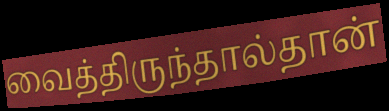
வைத்திருந்தால்தான்